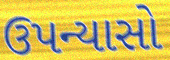
ઉપન્યાસો